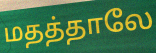
மதத்தாலே